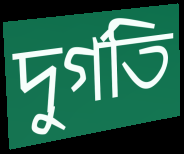
দুর্গতি